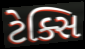
ટેક્સિ